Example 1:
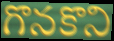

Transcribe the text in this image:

గొనకొని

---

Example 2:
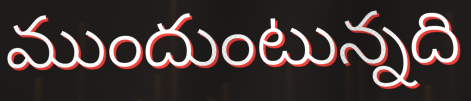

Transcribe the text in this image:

ముందుంటున్నది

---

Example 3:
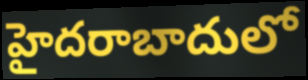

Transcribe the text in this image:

హైదరాబాదులో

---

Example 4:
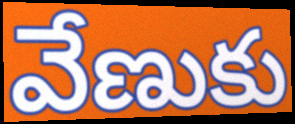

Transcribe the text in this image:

వేణుకు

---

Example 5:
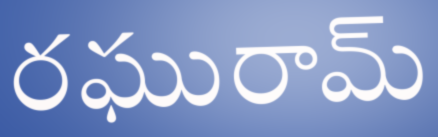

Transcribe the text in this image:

రఘురామ్